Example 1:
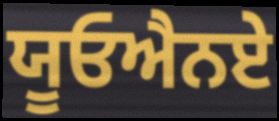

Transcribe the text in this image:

ਯੂਓਐਨਏ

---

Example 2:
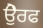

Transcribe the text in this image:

ਉੇਰਫ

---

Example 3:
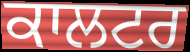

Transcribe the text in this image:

ਕਾਲਟਰ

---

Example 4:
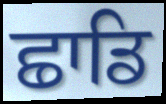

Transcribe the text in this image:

ਛਾਡਿ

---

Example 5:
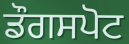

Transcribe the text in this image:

ਡੌਗਸਪੋਟ